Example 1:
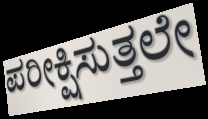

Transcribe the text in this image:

ಪರೀಕ್ಷಿಸುತ್ತಲೇ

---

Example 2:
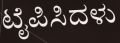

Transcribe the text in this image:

ಟೈಪಿಸಿದಳು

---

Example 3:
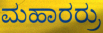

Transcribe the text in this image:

ಮಹಾರರ್ರು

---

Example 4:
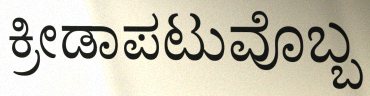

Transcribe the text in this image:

ಕ್ರೀಡಾಪಟುವೊಬ್ಬ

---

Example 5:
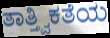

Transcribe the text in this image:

ತಾತ್ತ್ವಿಕತೆಯ